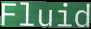
Fluid